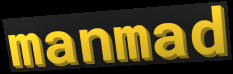
manmad